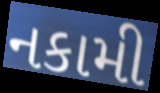
નકામી